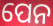
ପେନ